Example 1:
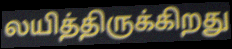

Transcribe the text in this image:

லயித்திருக்கிறது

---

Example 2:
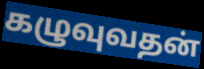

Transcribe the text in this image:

கழுவுவதன்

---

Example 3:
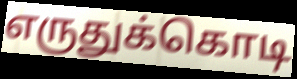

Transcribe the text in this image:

எருதுக்கொடி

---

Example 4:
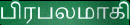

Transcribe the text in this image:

பிரபலமாகி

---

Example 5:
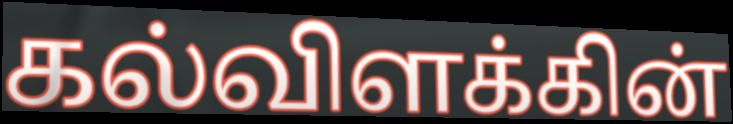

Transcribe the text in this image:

கல்விளக்கின்